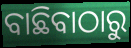
ବାଛିବାଠାରୁ